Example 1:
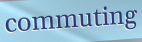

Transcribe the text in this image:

commuting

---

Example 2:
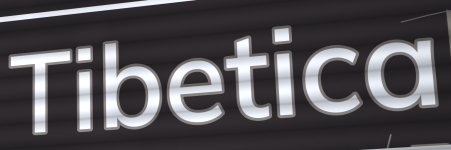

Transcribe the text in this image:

Tibetica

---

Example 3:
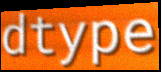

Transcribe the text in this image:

dtype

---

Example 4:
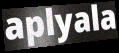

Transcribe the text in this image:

aplyala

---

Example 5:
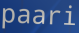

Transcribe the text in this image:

paari